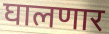
घालणार